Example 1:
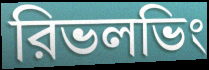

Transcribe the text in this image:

রিভলভিং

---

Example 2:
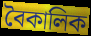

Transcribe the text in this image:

বৈকালিক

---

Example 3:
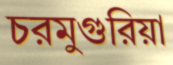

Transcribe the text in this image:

চরমুগুরিয়া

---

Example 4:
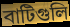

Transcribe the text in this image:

বাটিগুলি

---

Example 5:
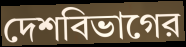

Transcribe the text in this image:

দেশবিভাগের